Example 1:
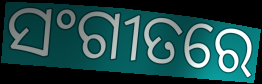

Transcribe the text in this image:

ସଂଗୀତରେ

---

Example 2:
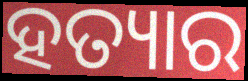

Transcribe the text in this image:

ହତ୍ୟାର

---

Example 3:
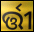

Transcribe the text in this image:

ର୍ତ୍ତୀ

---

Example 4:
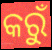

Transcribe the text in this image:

କରୁଁ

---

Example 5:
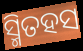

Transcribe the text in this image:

ସ୍ମିତହସ